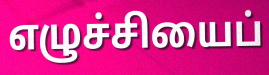
எழுச்சியைப்